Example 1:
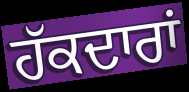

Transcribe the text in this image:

ਹੱਕਦਾਰਾਂ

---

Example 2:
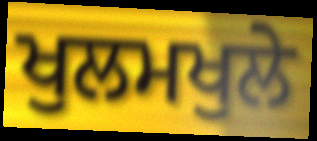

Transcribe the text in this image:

ਖੁਲਮਖੁਲੇ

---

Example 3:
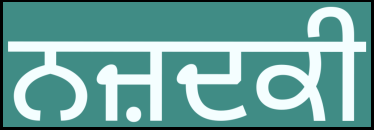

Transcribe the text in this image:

ਨਜ਼ਦਕੀ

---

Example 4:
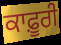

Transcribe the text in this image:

ਕਾਫ਼ੂਰੀ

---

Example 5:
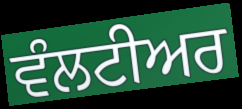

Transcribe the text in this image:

ਵੰਲਟੀਅਰ